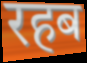
रहब